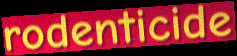
rodenticide